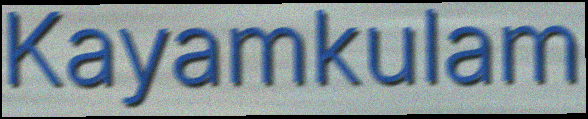
Kayamkulam